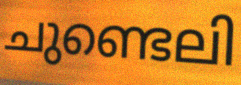
ചുണ്ടെലി